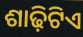
ଶାଢ଼ିଟିଏ